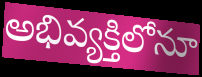
అభివ్యక్తిలోనూ